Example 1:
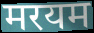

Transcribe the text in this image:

मरयम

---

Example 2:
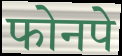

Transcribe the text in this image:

फोनपे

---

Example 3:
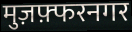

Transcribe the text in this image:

मुज़फ़्फरनगर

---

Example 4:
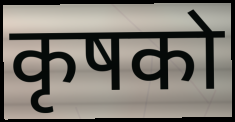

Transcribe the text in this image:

कृषको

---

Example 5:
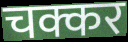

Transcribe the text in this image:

चक्‍कर